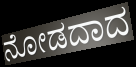
ನೋಡದಾದ